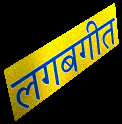
लगबगीत